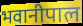
भवानीपाल